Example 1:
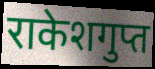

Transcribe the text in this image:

राकेशगुप्त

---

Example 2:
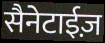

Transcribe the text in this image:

सैनेटाईज़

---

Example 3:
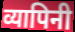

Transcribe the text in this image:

व्यापिनी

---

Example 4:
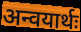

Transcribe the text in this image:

अन्वयार्थः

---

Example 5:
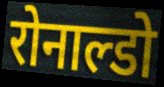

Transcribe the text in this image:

रोनाल्डो